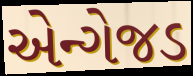
એન્ગેજડ